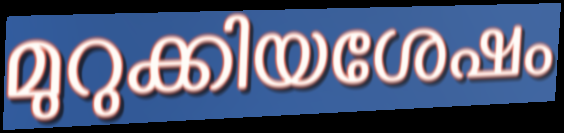
മുറുക്കിയശേഷം